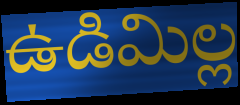
ఉడిమిల్ల